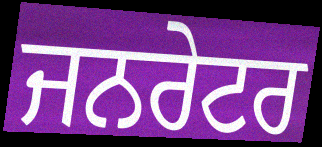
ਜਨਰੇਟਰ